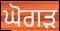
ਘੋਗੜ